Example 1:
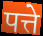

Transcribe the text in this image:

पत्ते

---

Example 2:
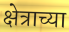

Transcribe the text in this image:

क्षेत्राच्या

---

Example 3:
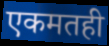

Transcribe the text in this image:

एकमतही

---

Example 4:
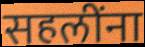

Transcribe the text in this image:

सहलींना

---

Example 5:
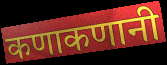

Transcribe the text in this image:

कणाकणानी